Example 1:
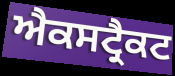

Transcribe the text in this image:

ਐਕਸਟ੍ਰੈਕਟ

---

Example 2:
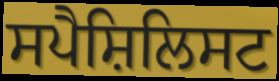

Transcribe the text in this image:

ਸਪੈਸ਼ਿਲਿਸਟ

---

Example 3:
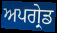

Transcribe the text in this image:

ਅਪਗ੍ਰੇਡ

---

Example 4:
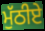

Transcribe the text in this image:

ਮੁੱਠੀਏ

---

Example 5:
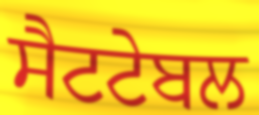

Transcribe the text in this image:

ਸੈਟਟੇਬਲ